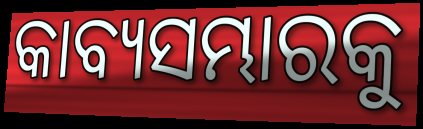
କାବ୍ୟସମ୍ଭାରକୁ